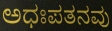
ಅಧಃಪತನವು